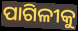
ପାଗିଳୀକୁ